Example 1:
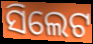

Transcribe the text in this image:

ସିଲେଟ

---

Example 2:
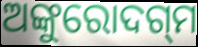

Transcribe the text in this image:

ଅଙ୍କୁରୋଦଗ୍‌ମ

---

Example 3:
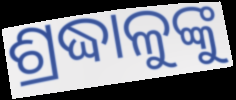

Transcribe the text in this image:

ଶ୍ରଦ୍ଧାଳୁଙ୍କୁ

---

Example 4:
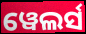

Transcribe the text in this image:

ୱେଲର୍ସ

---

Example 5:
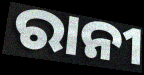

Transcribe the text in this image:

ରାନୀ